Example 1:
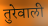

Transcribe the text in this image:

तुरेवाली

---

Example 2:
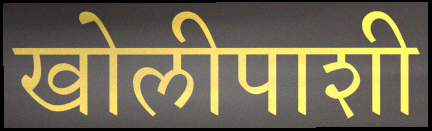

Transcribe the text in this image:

खोलीपाशी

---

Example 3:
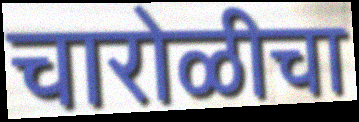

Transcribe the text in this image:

चारोळीचा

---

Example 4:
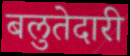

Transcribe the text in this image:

बलुतेदारी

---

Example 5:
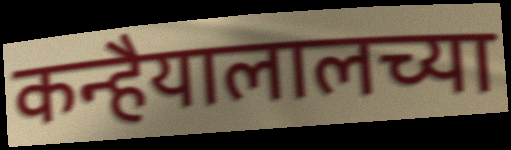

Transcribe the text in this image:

कन्हैयालालच्या